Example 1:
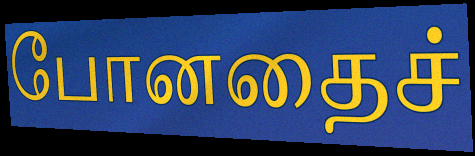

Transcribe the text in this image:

போனதைச்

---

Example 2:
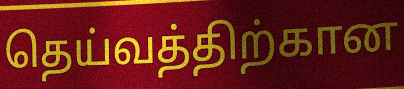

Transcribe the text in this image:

தெய்வத்திற்கான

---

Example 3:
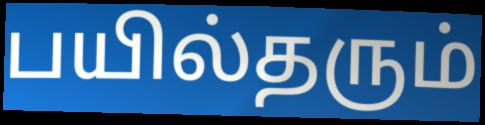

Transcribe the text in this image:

பயில்தரும்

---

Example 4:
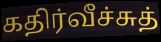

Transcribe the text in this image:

கதிர்வீச்சுத்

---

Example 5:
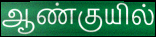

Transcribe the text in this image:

ஆண்குயில்